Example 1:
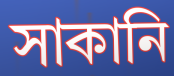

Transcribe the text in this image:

সাকানি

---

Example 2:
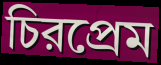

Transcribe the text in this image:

চিরপ্রেম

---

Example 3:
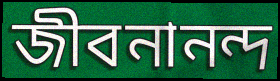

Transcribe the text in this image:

জীবনানন্দ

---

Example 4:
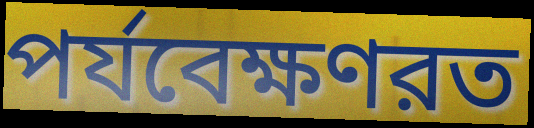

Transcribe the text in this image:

পর্যবেক্ষণরত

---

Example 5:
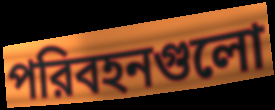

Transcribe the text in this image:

পরিবহনগুলো